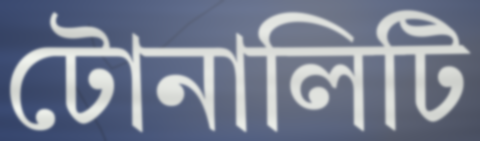
টোনালিটি